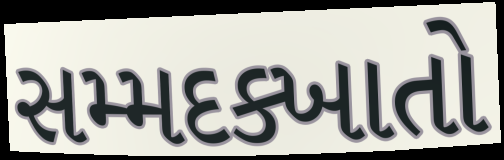
સમ્મદક્ખાતો